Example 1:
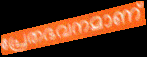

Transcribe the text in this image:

പ്രേതഭവനമാണ്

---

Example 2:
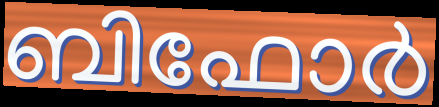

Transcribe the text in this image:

ബിഫോർ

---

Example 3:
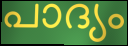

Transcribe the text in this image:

പാദ്യം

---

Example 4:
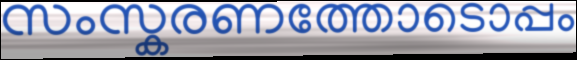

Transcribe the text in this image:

സംസ്കരണത്തോടൊപ്പം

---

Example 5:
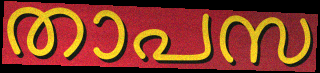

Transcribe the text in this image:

താപസ